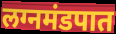
लग्नमंडपात